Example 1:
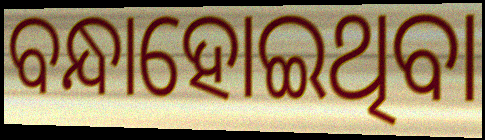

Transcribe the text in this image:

ବନ୍ଧାହୋଇଥିବା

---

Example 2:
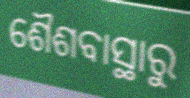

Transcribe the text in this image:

ଶୈଶବାସ୍ଥାରୁ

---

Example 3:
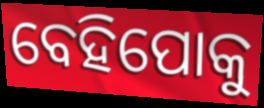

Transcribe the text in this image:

ବେହିପୋକୁ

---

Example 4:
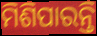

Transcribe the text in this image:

ମିଶିପାରନ୍ତି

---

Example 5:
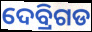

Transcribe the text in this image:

ଦେବ୍ରିଗଡ